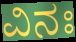
ವಿನಃ